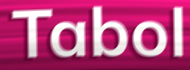
Tabol